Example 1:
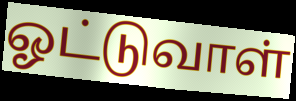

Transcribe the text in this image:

ஓட்டுவாள்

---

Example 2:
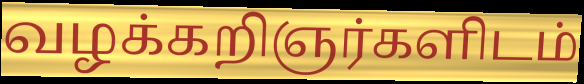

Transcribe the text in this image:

வழக்கறிஞர்களிடம்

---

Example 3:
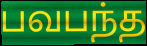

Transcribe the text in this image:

பவபந்த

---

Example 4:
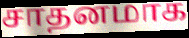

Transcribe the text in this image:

சாதனமாக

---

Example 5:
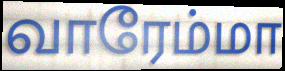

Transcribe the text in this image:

வாரேம்மா